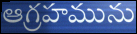
ఆగ్రహమును